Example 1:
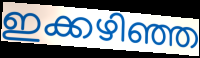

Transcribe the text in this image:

ഇക്കഴിഞ്ഞ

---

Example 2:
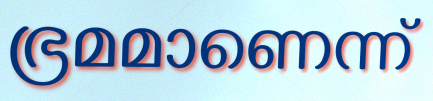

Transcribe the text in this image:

ഭ്രമമാണെന്ന്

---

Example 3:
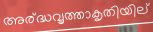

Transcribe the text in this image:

അര്ദ്ധവൃത്താകൃതിയില്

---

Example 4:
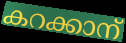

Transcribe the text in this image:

കറക്കാന്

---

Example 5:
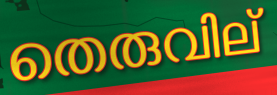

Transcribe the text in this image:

തെരുവില്